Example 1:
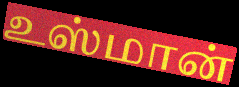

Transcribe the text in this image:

உஸ்மான்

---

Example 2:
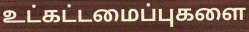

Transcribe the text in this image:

உட்கட்டமைப்புகளை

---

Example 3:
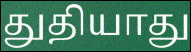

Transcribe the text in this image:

துதியாது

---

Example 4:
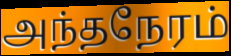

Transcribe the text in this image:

அந்தநேரம்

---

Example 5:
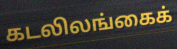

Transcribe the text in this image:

கடலிலங்கைக்